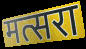
मत्सरा